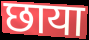
छाया